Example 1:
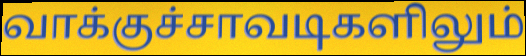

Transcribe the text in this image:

வாக்குச்சாவடிகளிலும்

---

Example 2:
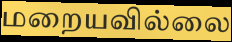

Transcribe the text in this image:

மறையவில்லை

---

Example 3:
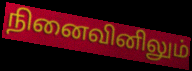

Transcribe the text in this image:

நினைவினிலும்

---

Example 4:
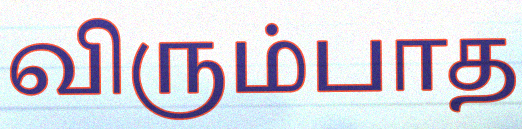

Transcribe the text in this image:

விரும்பாத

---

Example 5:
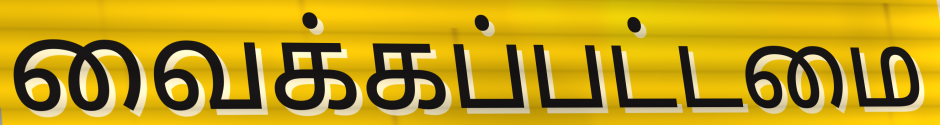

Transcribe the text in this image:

வைக்கப்பட்டமை